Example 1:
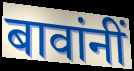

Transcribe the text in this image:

बावांनीं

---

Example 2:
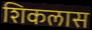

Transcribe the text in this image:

शिकलास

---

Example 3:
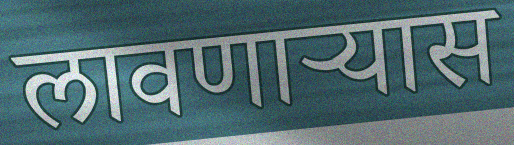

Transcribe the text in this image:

लावणाऱ्यास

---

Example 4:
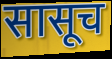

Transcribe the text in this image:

सासूच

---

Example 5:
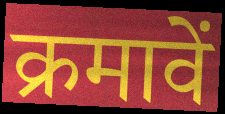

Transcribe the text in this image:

क्रमावें